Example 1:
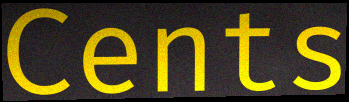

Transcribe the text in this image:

Cents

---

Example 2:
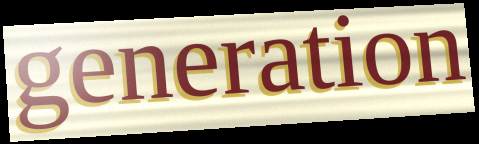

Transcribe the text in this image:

generation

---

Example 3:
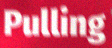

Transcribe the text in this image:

Pulling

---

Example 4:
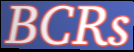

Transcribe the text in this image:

BCRs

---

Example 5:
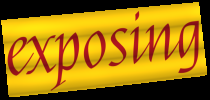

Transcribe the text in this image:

exposing